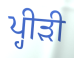
ਪ੍ਹੀੜੀ